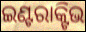
ଇଣ୍ଟରାକ୍ଟିଭ